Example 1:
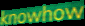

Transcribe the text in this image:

knowhow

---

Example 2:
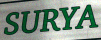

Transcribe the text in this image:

SURYA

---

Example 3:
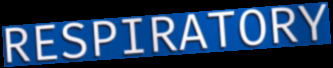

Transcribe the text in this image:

RESPIRATORY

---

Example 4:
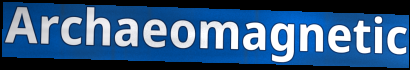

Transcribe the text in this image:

Archaeomagnetic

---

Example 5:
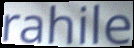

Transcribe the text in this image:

rahile